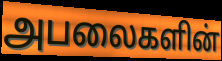
அபலைகளின்